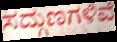
ಸದ್ಗುಣಗಳಿವೆ